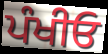
ਪੰਖੀਓ